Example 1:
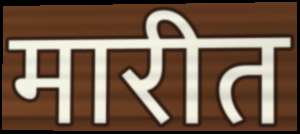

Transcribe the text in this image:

मारीत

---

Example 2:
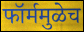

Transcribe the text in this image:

फॉर्ममुळेच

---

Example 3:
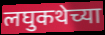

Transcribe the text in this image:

लघुकथेच्या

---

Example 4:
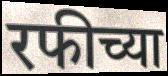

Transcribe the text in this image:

रफीच्या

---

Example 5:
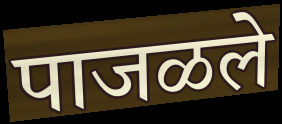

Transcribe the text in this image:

पाजळले